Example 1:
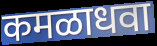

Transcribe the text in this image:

कमळाधवा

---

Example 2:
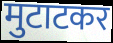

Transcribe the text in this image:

मुटाटकर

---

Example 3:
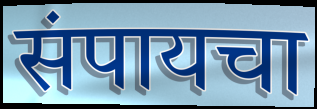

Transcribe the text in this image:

संपायचा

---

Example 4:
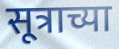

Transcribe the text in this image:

सूत्राच्या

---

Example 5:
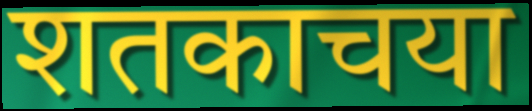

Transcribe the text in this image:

शतकाचया